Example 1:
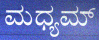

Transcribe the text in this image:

ಮಧ್ಯಮ್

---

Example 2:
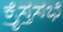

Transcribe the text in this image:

ಕ್ರೈಸ್ತಸಭೆ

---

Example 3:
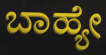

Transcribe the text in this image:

ಬಾಹ್ಯೇ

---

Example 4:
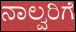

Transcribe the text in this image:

ನಾಲ್ವರಿಗೆ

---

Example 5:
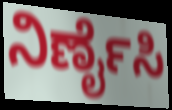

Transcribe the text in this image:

ನಿರ್ಣೈಸಿ